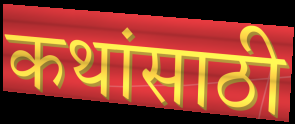
कथांसाठी